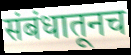
संबंधातूनच